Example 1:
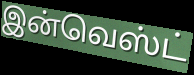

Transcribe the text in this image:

இன்வெஸ்ட்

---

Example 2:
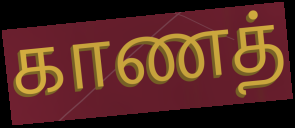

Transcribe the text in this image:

காணத்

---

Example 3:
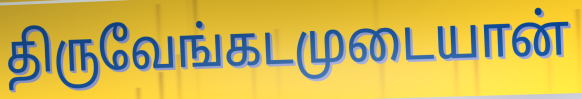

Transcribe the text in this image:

திருவேங்கடமுடையான்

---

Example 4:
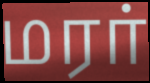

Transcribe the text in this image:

மரர்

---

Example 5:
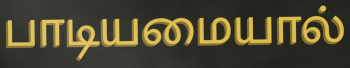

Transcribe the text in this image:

பாடியமையால்